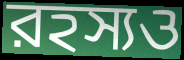
রহস্যও